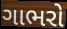
ગાભરો